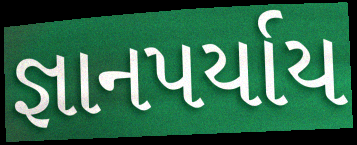
જ્ઞાનપર્યાય